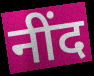
नींद